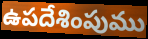
ఉపదేశింపుము